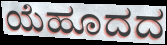
ಯೆಹೂದದ